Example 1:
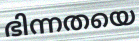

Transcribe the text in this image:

ഭിന്നതയെ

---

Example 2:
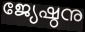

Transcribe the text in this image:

ജ്യേഷ്ഠനു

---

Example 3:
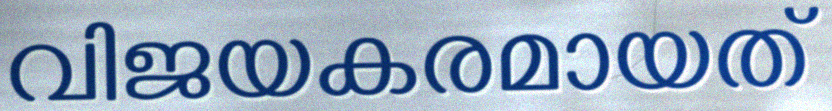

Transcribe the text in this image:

വിജയകരമായത്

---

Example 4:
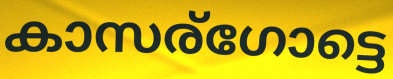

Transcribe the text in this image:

കാസര്ഗോട്ടെ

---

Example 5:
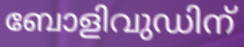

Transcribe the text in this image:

ബോളിവുഡിന്